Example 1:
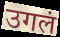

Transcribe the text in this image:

उगलं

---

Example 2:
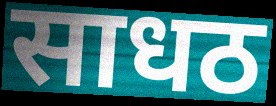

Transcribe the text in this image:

साधठ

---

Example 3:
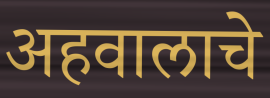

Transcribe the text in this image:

अहवालाचे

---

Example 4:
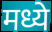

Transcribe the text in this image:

मध्ये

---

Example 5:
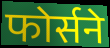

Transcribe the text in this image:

फोर्सने